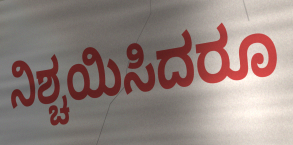
ನಿಶ್ಚಯಿಸಿದರೂ